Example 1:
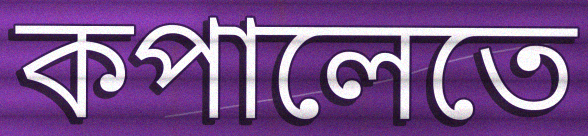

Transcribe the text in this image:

কপালেতে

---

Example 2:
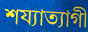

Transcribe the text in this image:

শয্যাত্যাগী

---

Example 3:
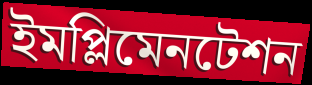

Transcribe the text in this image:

ইমপ্লিমেনটেশন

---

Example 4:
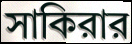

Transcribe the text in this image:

সাকিরার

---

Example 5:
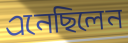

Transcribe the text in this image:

এনেছিলেন